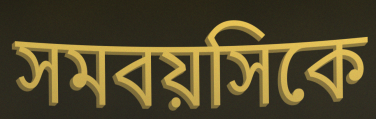
সমবয়সিকে